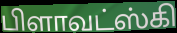
பிளாவட்ஸ்கி